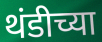
थंडीच्या